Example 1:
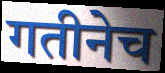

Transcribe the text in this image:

गतीनेच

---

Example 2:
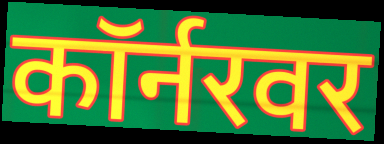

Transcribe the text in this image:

कॉर्नरवर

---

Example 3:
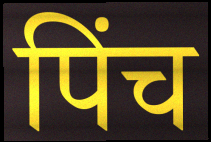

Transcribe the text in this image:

पिंच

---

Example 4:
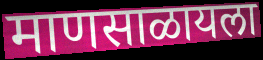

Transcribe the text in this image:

माणसाळायला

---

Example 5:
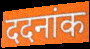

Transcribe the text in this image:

ददनांक